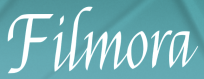
Filmora